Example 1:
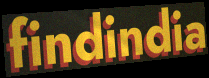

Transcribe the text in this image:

findindia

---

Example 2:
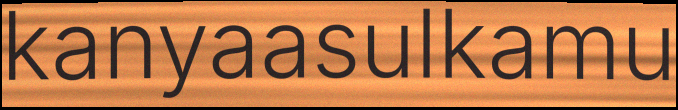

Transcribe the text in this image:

kanyaasulkamu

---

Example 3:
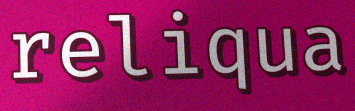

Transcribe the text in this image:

reliqua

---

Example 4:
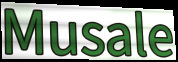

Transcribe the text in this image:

Musale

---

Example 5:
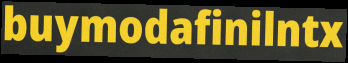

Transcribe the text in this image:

buymodafinilntx